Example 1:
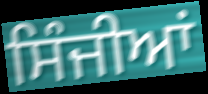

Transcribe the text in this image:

ਸਿੰਜੀਆਂ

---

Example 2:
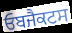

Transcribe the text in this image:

ਓਬਜੈਕਟਸ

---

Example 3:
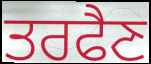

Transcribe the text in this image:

ਤਰਫੈਣ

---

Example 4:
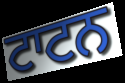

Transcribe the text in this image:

ਟਾਟਨ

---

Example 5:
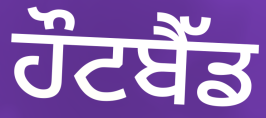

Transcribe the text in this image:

ਹੌਟਬੈੱਡ